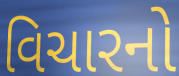
વિચારનો